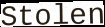
Stolen